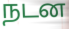
நடன